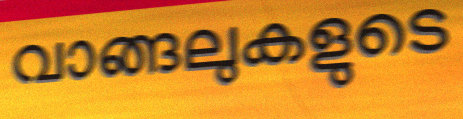
വാങ്ങലുകളുടെ